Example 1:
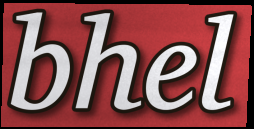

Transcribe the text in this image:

bhel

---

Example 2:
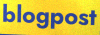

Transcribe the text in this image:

blogpost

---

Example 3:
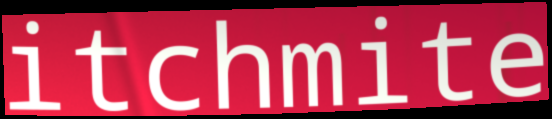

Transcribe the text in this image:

itchmite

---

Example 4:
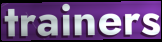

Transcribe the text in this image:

trainers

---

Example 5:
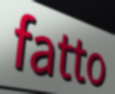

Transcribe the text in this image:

fatto